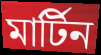
মার্টিন